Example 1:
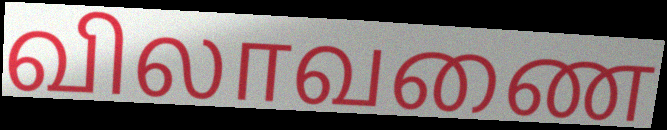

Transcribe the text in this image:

விலாவணை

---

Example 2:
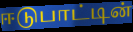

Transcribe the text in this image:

ஈடுபாட்டின்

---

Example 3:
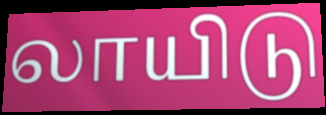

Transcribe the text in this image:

லாயிடு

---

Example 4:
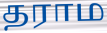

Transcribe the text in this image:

தராம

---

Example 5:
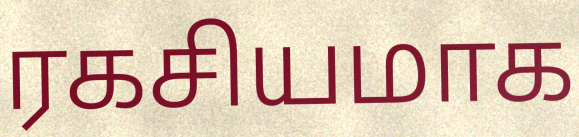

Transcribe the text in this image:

ரகசியமாக